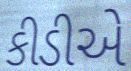
કીડીએ